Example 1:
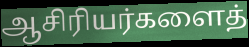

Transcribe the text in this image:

ஆசிரியர்களைத்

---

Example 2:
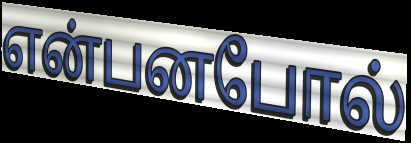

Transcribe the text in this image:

என்பனபோல்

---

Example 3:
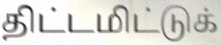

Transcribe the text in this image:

திட்டமிட்டுக்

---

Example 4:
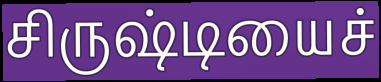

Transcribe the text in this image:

சிருஷ்டியைச்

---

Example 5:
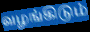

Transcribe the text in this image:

வழங்கிடும்